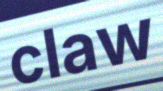
claw